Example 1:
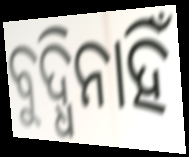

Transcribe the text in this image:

ବୁଦ୍ଧିନାହିଁ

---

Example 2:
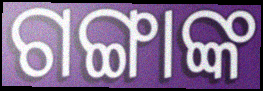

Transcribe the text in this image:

ଗଙ୍ଗାଙ୍କ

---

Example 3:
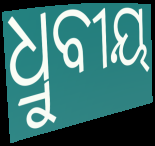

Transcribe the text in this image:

ଧ୍ରୁବୀୟ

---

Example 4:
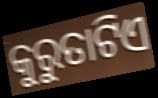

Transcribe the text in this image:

କୁରୁତାଟିଏ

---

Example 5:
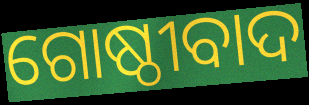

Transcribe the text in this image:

ଗୋଷ୍ଠୀବାଦ